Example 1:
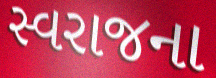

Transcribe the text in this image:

સ્વરાજના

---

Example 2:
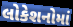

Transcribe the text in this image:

લોકેશનોમાં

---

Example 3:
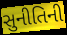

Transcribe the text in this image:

સુનીતિની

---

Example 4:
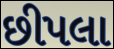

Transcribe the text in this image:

છીપલા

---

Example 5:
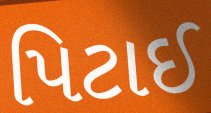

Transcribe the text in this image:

પિટાઈ